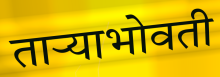
ताऱ्याभोवती